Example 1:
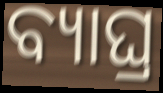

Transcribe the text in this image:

ବ୍ୟାଘ୍ର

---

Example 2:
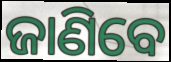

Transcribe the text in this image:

ଜାଣିବେ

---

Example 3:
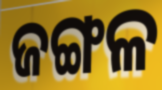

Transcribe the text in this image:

ଜଙ୍ଗଳ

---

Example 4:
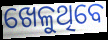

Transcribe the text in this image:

ଖେଳୁଥିବେ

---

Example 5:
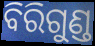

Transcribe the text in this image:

ବିରିଗୁଣ୍ଡ